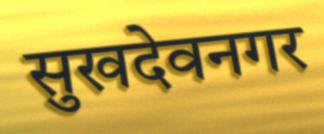
सुखदेवनगर